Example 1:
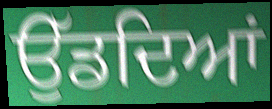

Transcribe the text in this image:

ਉੱਡਦਿਆਂ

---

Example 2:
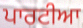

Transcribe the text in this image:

ਪਾਰਟੀਆ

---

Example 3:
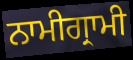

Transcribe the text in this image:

ਨਾਮੀਗ੍ਰਾਮੀ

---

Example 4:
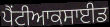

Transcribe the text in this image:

ਪੈਂਟੀਆਕਸਾਈਡ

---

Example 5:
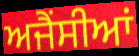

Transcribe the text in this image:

ਅਜੈਂਸੀਆਂ